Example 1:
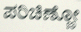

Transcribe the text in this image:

ಪರಿಚಿಣ್ಣೋ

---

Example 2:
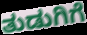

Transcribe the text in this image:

ತುಡುಗಿಗೆ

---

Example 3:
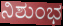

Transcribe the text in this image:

ನಿಶುಂಭ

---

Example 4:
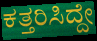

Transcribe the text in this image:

ಕತ್ತರಿಸಿದ್ದೇ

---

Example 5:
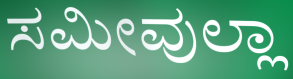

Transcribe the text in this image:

ಸಮೀವುಲ್ಲಾ